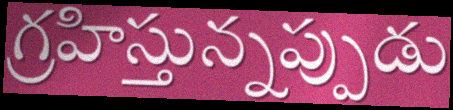
గ్రహిస్తున్నప్పుడు